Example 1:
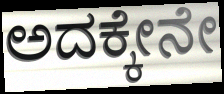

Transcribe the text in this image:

ಅದಕ್ಕೇನೇ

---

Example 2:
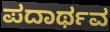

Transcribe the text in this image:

ಪದಾರ್ಥವ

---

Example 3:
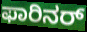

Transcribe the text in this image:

ಫಾರಿನರ್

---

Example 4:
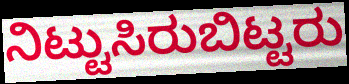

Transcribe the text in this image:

ನಿಟ್ಟುಸಿರುಬಿಟ್ಟರು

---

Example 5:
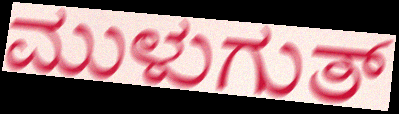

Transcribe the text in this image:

ಮುಳುಗುತ್